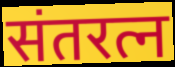
संतरत्न